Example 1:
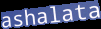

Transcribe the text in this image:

ashalata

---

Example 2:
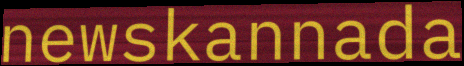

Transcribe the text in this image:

newskannada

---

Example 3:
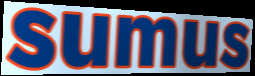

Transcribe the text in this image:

sumus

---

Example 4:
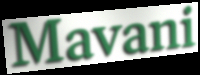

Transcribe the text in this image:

Mavani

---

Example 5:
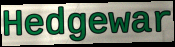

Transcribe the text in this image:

Hedgewar